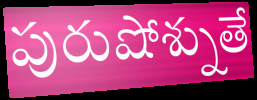
పురుషోశ్నుతే